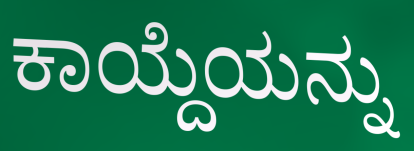
ಕಾಯ್ದೆಯನ್ನು